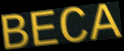
BECA